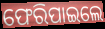
ଫେରିପାଇଲେ